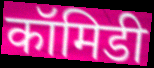
कॉमिडी